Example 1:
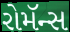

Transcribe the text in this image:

રોમૅન્સ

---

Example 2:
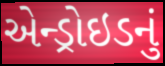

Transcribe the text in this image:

એન્ડ્રોઇડનું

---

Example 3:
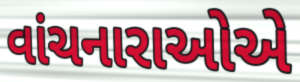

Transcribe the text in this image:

વાંચનારાઓએ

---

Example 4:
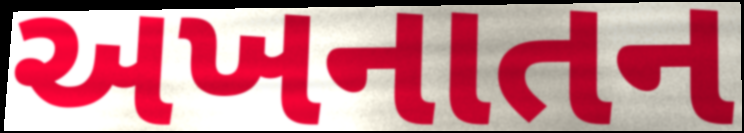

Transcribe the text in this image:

અખનાતન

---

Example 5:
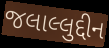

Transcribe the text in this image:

જલાલ્લુદ્દીન